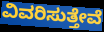
ವಿವರಿಸುತ್ತೇವೆ